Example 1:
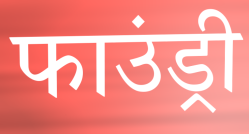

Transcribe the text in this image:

फाउंड्री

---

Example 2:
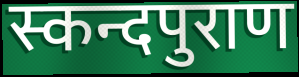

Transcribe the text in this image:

स्कन्दपुराण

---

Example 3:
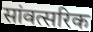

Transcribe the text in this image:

सांवत्सरिक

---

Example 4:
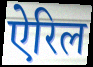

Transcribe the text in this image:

ऐरिल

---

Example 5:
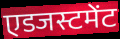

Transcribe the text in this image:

एडजस्‍टमेंट